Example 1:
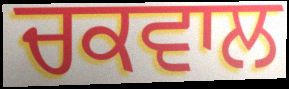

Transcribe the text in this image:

ਚਕਵਾਲ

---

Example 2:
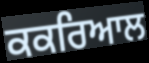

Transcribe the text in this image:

ਕਕਰਿਆਲ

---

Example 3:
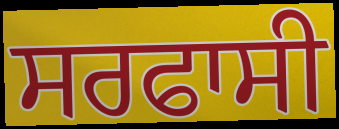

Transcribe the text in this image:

ਸਰਫਾਸੀ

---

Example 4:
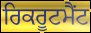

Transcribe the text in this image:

ਰਿਕਰੂਟਮੈਂਟ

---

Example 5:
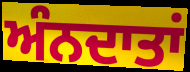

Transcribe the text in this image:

ਅੰਨਦਾਤਾਂ